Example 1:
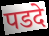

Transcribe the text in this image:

पडदे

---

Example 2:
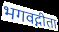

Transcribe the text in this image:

भगवद्गीता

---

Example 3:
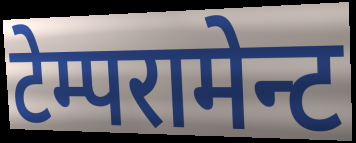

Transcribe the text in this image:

टेम्परामेन्ट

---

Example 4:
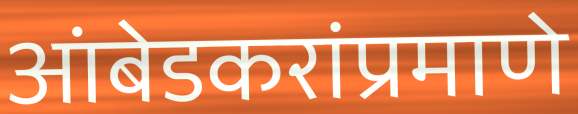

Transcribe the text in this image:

आंबेडकरांप्रमाणे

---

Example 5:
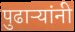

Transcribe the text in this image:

पुढाऱ्यांनी